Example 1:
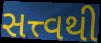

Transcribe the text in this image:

સત્ત્વથી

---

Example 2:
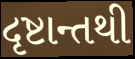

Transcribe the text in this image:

દૃષ્ટાન્તથી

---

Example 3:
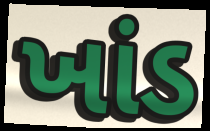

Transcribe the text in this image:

ખાંડ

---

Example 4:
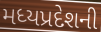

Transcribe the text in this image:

મધ્યપ્રદેશની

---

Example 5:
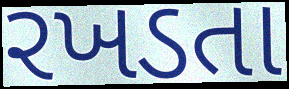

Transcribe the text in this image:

રખડતા